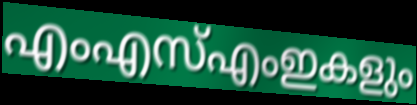
എംഎസ്എംഇകളും